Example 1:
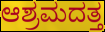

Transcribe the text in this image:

ಆಶ್ರಮದತ್ತ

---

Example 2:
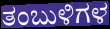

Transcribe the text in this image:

ತಂಬುಳಿಗಳ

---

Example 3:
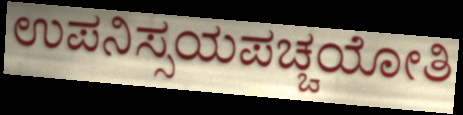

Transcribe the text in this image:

ಉಪನಿಸ್ಸಯಪಚ್ಚಯೋತಿ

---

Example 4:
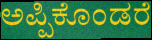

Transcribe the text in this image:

ಅಪ್ಪಿಕೊಂಡರೆ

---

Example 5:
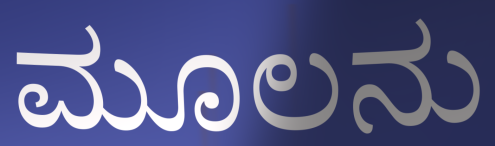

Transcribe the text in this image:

ಮೂಲನು